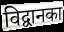
विद्वानका